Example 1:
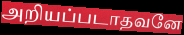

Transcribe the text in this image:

அறியப்படாதவனே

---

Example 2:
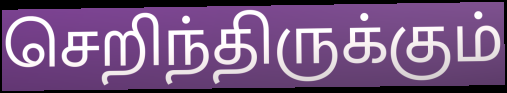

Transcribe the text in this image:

செறிந்திருக்கும்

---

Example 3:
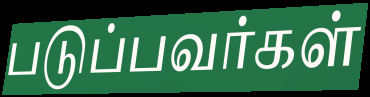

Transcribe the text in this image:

படுப்பவர்கள்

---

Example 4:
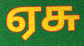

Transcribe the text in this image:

ஏசு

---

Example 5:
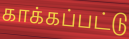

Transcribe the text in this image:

காக்கப்பட்டு